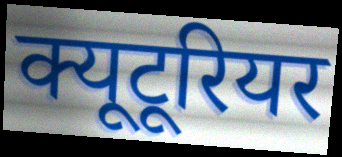
क्यूटूरियर